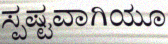
ಸ್ಪಷ್ಟವಾಗಿಯೂ